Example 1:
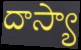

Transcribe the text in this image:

దాస్యా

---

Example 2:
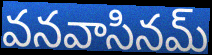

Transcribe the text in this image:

వనవాసినమ్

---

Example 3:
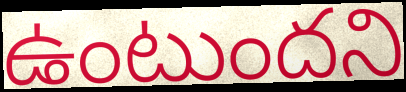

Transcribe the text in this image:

ఉంటుందని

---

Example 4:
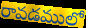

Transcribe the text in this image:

రావడములో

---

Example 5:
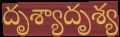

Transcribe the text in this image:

దృశ్యాదృశ్య